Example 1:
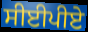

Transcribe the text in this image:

ਸੀਈਪੀਏ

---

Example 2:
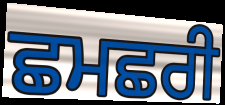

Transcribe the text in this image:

ਛਮਛਰੀ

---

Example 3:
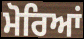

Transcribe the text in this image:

ਮੋਰਿਆਂ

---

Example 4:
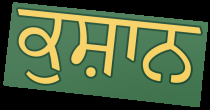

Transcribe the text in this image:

ਕੁਸ਼ਾਨ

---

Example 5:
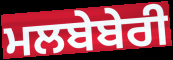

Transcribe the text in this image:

ਮਲਬੇਬੇਰੀ